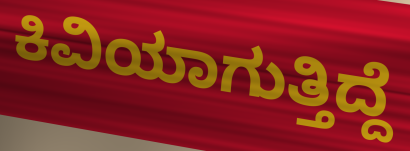
ಕಿವಿಯಾಗುತ್ತಿದ್ದೆ